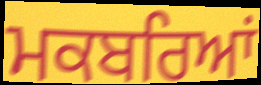
ਮਕਬਰਿਆਂ